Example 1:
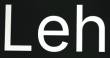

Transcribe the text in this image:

Leh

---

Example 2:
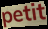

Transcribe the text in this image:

petit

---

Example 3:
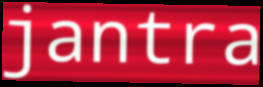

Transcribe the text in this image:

jantra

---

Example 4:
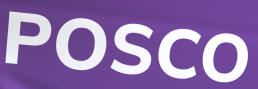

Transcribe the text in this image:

POSCO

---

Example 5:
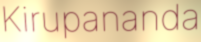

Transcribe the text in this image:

Kirupananda